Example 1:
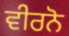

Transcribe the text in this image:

ਵੀਰਨੋ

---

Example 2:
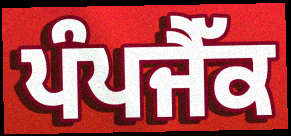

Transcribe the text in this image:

ਪੰਪਜੈੱਕ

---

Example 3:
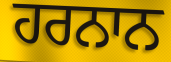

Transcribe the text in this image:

ਹਰਨਾਨ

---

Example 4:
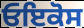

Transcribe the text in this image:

ਓਇਕੋਸ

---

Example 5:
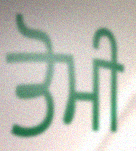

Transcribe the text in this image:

ਤੋਮੀ